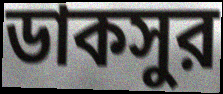
ডাকসুর